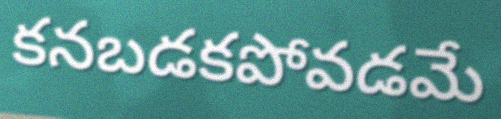
కనబడకపోవడమే